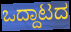
ಒದ್ದಾಟದ